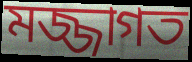
মজ্জাগত